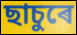
ছাচুৰে